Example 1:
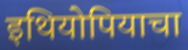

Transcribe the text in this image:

इथियोपियाचा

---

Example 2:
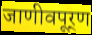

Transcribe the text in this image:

जाणीवपूर्ण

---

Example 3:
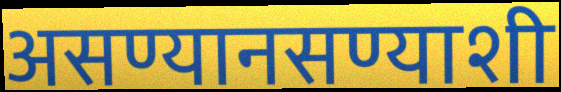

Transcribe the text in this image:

असण्यानसण्याशी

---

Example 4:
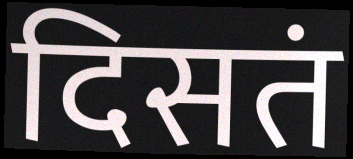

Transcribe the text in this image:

दिसतं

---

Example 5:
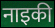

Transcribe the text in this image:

नाइकी